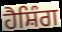
ਹੈਸ਼ਿੰਗ